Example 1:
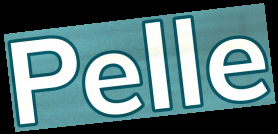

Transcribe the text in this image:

Pelle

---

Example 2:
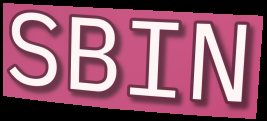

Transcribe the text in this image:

SBIN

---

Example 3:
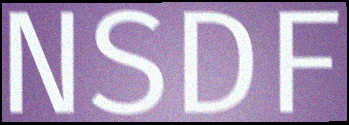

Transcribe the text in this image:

NSDF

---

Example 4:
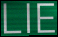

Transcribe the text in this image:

LIE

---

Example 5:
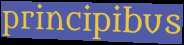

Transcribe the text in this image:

principibus